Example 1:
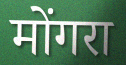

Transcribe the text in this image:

मोंगरा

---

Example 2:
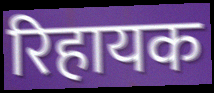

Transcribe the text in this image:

रिहायक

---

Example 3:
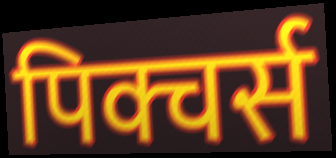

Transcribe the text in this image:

पिक्चर्स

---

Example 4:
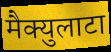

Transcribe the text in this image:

मैक्युलाटा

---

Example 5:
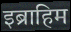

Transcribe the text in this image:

इब्राहिम